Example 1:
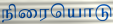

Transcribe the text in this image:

நிரையொடு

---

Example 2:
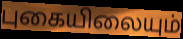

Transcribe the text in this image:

புகையிலையும்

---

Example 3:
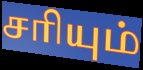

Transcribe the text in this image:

சரியும்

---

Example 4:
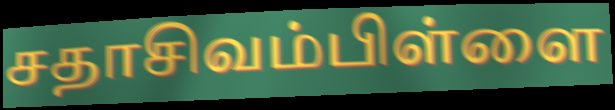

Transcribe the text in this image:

சதாசிவம்பிள்ளை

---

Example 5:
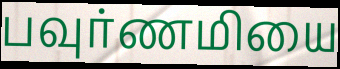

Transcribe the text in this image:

பவுர்ணமியை